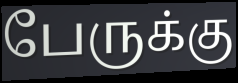
பேருக்கு